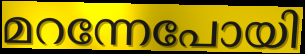
മറന്നേപോയി